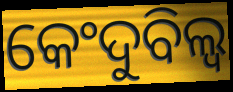
କେଂଦୁବିଲ୍ୱ